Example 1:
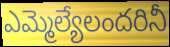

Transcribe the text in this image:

ఎమ్మెల్యేలందరినీ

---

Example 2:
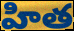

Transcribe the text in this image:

హిత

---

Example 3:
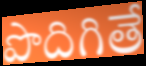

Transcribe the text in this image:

పొదిగితే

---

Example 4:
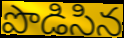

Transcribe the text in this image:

పొడిసిన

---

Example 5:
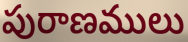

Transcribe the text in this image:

పురాణములు